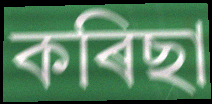
কৰিছা